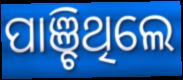
ପାଞ୍ଚିଥିଲେ